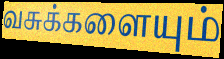
வசுக்களையும்